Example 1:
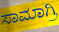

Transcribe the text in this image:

ಸಾಮಾಗ್ರಿ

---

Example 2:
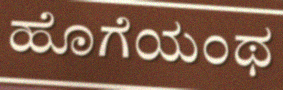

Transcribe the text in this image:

ಹೊಗೆಯಂಥ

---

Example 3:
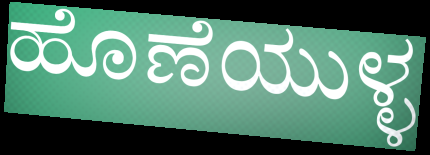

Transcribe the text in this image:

ಹೊಣೆಯುಳ್ಳ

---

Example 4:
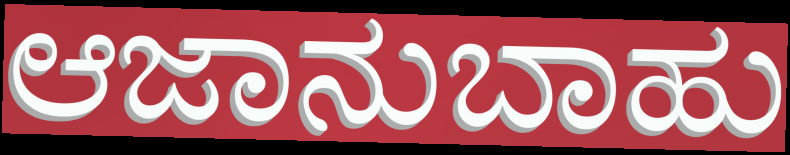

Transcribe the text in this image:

ಆಜಾನುಬಾಹು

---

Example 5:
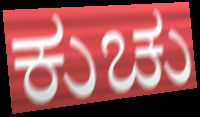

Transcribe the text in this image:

ಕುಚು